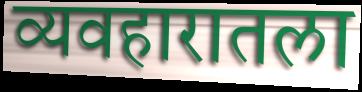
व्यवहारातला